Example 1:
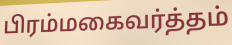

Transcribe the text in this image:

பிரம்மகைவர்த்தம்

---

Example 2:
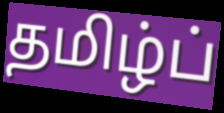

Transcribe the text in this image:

தமிழ்ப்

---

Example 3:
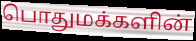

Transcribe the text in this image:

பொதுமக்களின்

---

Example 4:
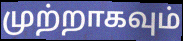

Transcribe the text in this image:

முற்றாகவும்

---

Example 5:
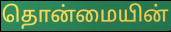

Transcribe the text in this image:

தொன்மையின்